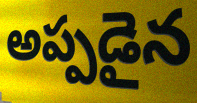
అప్పడైన